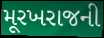
મૂરખરાજની